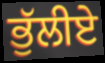
ਭੁੱਲੀਏ